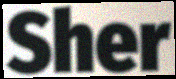
Sher